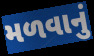
મળવાનું